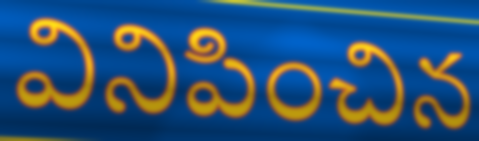
వినిపించిన